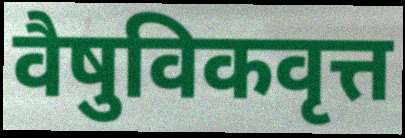
वैषुविकवृत्त